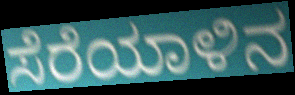
ಸೆರೆಯಾಳಿನ